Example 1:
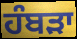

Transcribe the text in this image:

ਹੰਬਡ਼ਾ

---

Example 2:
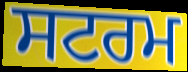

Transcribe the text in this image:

ਸਟਰਮ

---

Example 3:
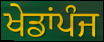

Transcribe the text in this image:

ਖੇਡਾਂਪੰਜ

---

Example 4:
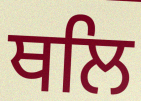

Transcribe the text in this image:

ਥਲਿ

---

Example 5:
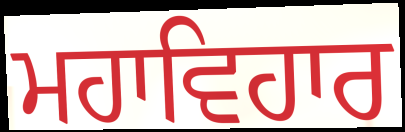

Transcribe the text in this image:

ਮਹਾਵਿਹਾਰ